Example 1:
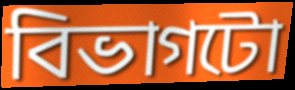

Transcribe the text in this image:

বিভাগটো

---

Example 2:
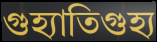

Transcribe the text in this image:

গুহ্যাতিগুহ্য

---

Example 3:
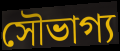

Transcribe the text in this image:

সৌভাগ্য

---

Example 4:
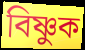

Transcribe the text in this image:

বিষ্ণুক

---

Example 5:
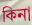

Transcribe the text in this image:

কিনা